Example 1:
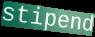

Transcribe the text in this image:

stipend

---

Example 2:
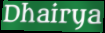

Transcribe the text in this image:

Dhairya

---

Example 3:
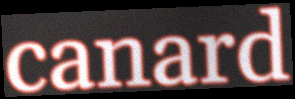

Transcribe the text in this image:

canard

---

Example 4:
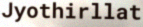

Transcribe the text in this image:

Jyothirllat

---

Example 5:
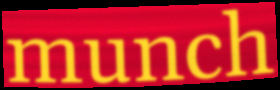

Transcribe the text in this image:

munch